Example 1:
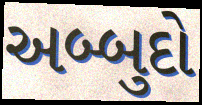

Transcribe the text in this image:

અબ્બુદો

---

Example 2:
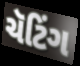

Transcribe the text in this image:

ચૅટિંગ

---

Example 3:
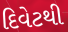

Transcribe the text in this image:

દિવેટથી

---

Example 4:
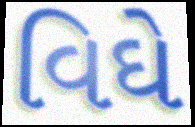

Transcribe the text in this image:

વિઘે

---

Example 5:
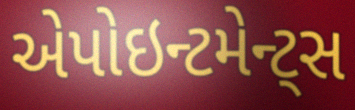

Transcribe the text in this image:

એપોઇન્ટમેન્ટ્સ